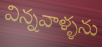
విన్నవాళ్ళను